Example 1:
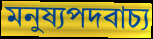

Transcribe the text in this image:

মনুষ্যপদবাচ্য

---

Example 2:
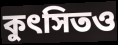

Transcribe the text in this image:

কুৎসিতও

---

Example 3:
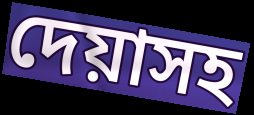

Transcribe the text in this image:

দেয়াসহ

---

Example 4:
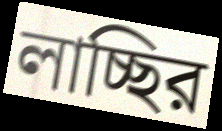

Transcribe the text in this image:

লাচ্ছির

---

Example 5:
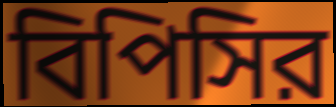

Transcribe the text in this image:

বিপিসির